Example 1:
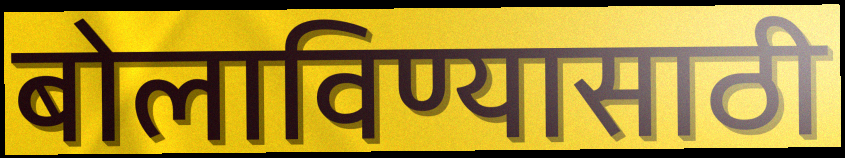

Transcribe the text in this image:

बोलाविण्यासाठी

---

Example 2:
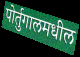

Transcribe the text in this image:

पोर्तुगालमधील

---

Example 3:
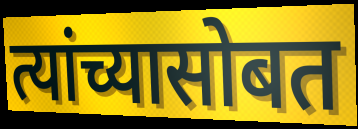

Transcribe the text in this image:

त्यांच्यासोबत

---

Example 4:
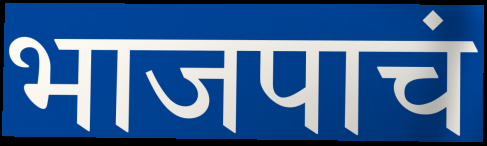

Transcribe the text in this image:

भाजपाचं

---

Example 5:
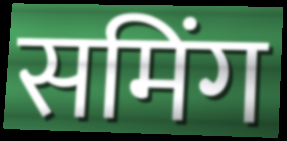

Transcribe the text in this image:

समिंग